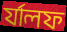
র্যালফ